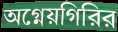
অগ্নেয়গিরির